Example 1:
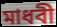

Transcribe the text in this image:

মাধবী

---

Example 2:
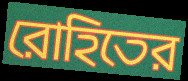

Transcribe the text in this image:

রোহিতের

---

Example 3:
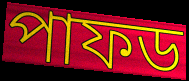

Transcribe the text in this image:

পাফড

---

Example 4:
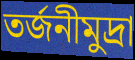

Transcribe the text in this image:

তর্জনীমুদ্রা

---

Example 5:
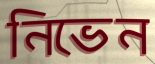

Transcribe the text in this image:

নিভেন